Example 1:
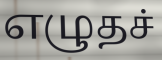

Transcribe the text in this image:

எழுதச்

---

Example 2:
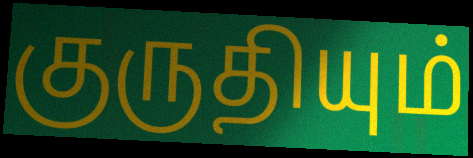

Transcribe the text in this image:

குருதியும்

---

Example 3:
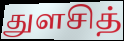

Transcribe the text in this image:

துளசித்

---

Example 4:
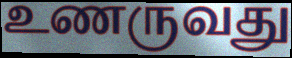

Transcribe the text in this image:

உணருவது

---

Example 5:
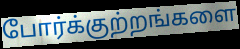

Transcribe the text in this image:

போர்க்குற்றங்களை